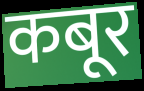
कबूर